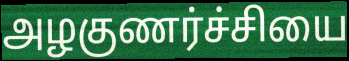
அழகுணர்ச்சியை